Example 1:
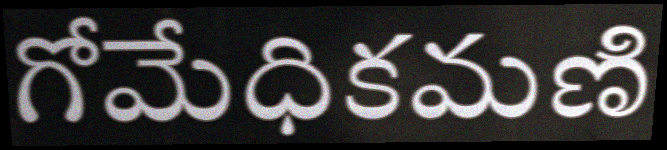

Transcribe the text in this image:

గోమేధికమణి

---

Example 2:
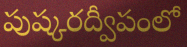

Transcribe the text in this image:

పుష్కరద్వీపంలో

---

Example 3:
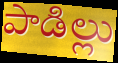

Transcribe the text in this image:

పాడిల్లు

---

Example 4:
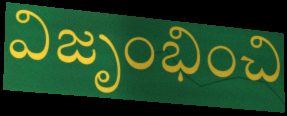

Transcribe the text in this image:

విజృంభించి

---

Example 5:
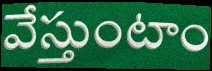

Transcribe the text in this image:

వేస్తుంటాం